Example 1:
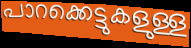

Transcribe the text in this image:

പാറക്കെട്ടുകളുള്ള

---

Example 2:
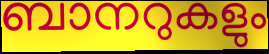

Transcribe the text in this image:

ബാനറുകളും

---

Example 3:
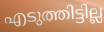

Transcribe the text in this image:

എടുത്തിട്ടില്ല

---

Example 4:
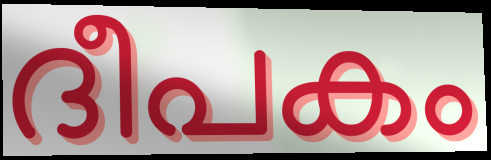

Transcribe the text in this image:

ദീപകം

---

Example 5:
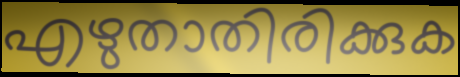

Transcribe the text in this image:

എഴുതാതിരിക്കുക